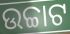
ଉଚ୍ଚାଟ